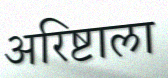
अरिष्टाला